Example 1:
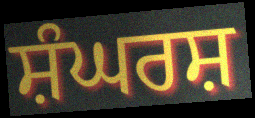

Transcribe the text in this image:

ਸ਼ੰਘਰਸ਼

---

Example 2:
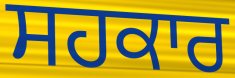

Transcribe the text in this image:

ਸਹਕਾਰ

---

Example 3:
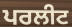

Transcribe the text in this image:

ਪਰਲੀਟ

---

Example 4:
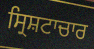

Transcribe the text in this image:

ਸ੍ਰਿਸ਼ਟਾਚਾਰ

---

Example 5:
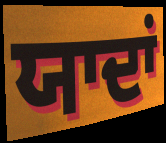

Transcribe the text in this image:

ਯਾਦਾਂ